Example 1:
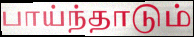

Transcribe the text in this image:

பாய்ந்தாடும்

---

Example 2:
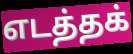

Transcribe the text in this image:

எடத்தக்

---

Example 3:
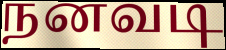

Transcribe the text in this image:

நனவடி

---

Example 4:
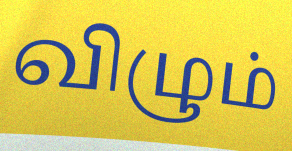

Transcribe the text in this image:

விழும்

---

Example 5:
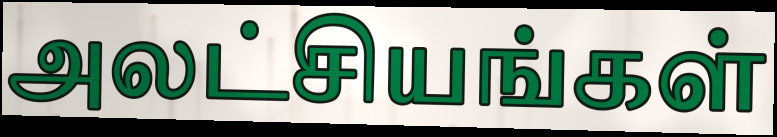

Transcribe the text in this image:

அலட்சியங்கள்